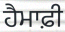
ਹੈਮਾਫ਼ੀ